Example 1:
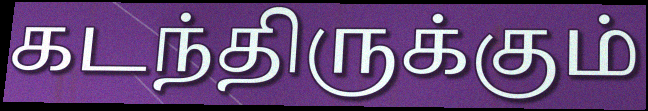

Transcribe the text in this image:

கடந்திருக்கும்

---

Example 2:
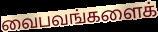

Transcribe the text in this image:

வைபவங்களைக்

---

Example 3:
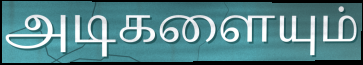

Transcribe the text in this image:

அடிகளையும்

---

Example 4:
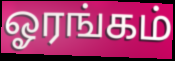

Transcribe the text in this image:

ஓரங்கம்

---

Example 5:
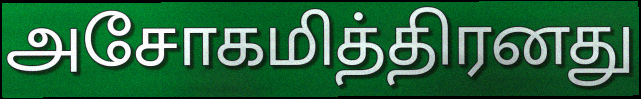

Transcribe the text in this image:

அசோகமித்திரனது